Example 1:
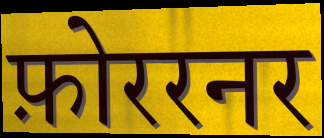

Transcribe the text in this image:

फ़ोररनर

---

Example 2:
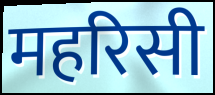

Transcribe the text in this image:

महरिसी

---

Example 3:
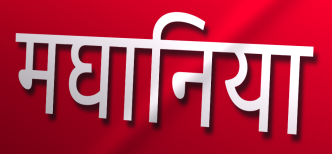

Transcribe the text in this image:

मघानिया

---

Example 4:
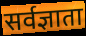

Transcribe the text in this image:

सर्वज्ञाता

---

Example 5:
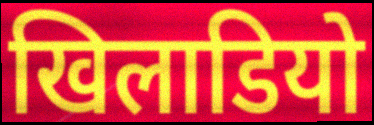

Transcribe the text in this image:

खिलाडियो